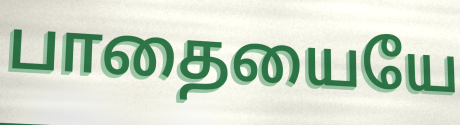
பாதையையே